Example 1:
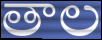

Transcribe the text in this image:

తాల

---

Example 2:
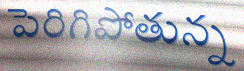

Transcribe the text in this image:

పెరిగిపోతున్న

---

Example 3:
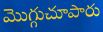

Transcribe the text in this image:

మొగ్గుచూపారు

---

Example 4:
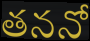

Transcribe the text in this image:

తననో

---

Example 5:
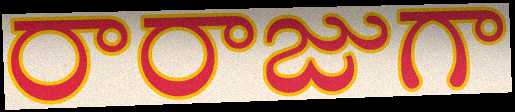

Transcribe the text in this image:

రారాజుగా